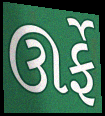
ઊર્ફે